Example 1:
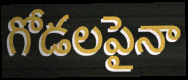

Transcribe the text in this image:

గోడలపైనా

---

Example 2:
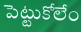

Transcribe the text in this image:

పెట్టుకోలేం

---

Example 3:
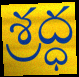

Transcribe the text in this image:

శ్రద్ధ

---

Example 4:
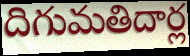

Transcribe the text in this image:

దిగుమతిదార్ల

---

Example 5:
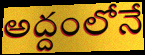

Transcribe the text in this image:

అద్దంలోనే